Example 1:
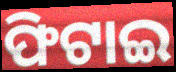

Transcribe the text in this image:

ଫିଟାଇ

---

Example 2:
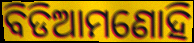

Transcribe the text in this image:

ବିଡିଆମଣୋହି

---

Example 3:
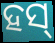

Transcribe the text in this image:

ହସ୍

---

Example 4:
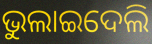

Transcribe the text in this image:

ଭୁଲାଇଦେଲି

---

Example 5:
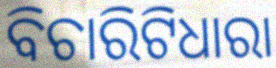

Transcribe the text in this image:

ବିଚାରିଟିଧାରା